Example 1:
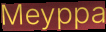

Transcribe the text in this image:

Meyppa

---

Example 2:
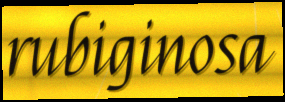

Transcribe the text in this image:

rubiginosa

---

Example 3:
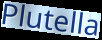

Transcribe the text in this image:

Plutella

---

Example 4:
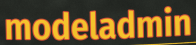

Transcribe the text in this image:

modeladmin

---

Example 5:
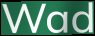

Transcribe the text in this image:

Wad